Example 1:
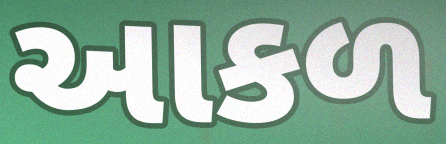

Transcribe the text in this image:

આકળ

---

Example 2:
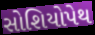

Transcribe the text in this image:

સોશિયોપેથ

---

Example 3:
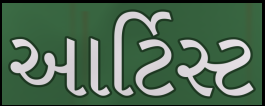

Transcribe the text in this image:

આર્ટિસ્ટ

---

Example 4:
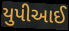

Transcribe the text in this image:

યુપીઆઈ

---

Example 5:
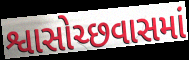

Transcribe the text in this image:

શ્વાસોચ્છવાસમાં